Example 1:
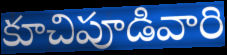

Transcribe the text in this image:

కూచిపూడివారి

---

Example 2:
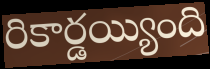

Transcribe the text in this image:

రికార్డయ్యింది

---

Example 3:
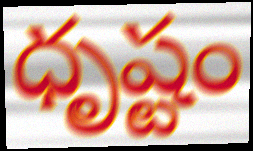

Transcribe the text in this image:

ధృష్టం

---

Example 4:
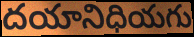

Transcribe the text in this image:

దయానిధియగు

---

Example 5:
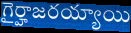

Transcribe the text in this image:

గైర్హాజరయ్యాయి